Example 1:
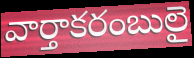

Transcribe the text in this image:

వార్తాకరంబులై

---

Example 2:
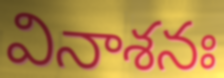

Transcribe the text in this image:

వినాశనః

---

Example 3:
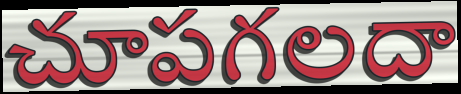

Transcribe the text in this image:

చూపగలదా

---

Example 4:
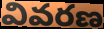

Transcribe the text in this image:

వివరణ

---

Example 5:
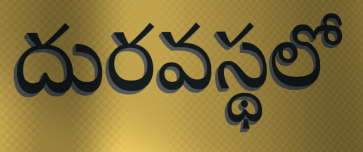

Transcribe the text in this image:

దురవస్థలో